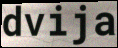
dvija